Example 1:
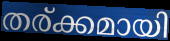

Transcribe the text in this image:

തര്ക്കമായി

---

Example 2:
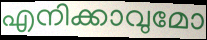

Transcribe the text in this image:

എനിക്കാവുമോ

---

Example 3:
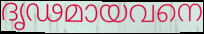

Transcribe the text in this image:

ദൃഢമായവനെ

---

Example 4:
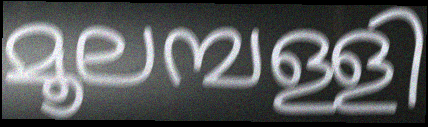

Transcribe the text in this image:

മൂലമ്പള്ളി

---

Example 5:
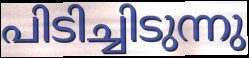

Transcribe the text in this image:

പിടിച്ചിടുന്നു